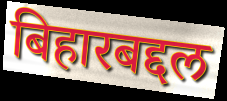
बिहारबद्दल